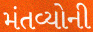
મંતવ્યોની